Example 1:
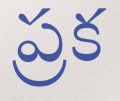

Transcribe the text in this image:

ప్రక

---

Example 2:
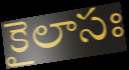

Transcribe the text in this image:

కైలాసః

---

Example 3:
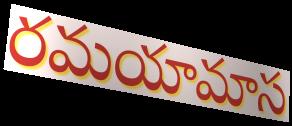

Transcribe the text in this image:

రమయామాస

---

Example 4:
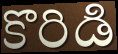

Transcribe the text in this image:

కొరిడి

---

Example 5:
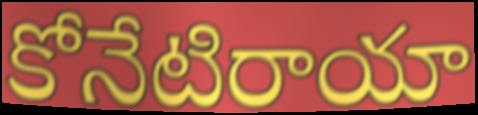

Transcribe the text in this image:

కోనేటిరాయా